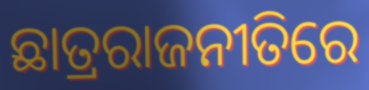
ଛାତ୍ରରାଜନୀତିରେ